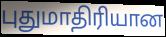
புதுமாதிரியான